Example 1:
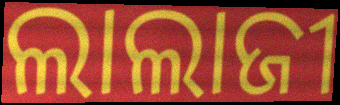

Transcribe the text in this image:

ଲାଲାଜୀ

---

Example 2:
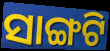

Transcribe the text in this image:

ସାଙ୍ଗଟି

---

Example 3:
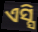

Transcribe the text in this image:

ଏସ୍ସି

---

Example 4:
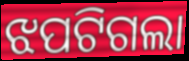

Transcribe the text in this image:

ଝପଟିଗଲା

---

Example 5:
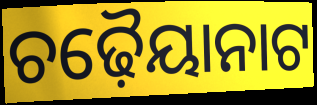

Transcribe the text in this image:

ଚଢ଼ୈୟାନାଟ